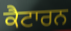
ਕੈਟਾਰਨ